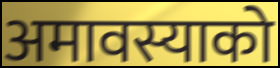
अमावस्याको